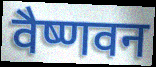
वैष्णवन